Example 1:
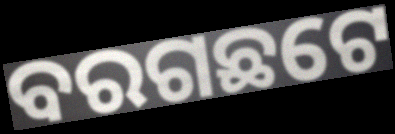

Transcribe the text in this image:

ବରଗଛଟେ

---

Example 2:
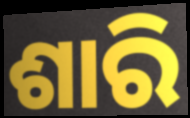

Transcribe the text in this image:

ଶାରି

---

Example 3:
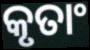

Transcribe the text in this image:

କୃତାଂ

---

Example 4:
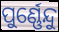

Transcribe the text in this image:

ପୁର୍ଣ୍ଣେନ୍ଦୁ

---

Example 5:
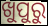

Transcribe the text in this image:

ଖୁପୁରୁ